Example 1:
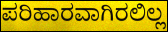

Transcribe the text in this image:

ಪರಿಹಾರವಾಗಿರಲಿಲ್ಲ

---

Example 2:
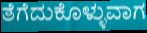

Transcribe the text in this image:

ತೆಗೆದುಕೊಳ್ಳುವಾಗ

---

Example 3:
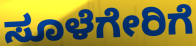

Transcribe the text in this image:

ಸೂಳೆಗೇರಿಗೆ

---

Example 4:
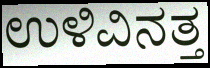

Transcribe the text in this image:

ಉಳಿವಿನತ್ತ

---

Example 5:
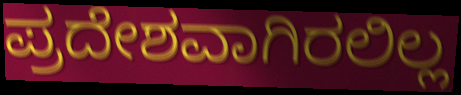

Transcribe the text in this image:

ಪ್ರದೇಶವಾಗಿರಲಿಲ್ಲ